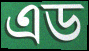
এড